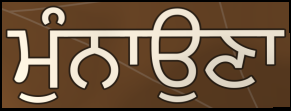
ਮੁੰਨਾਉਣਾ